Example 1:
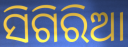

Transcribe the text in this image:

ସିଗିରିଆ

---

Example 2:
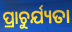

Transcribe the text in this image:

ପ୍ରାଚୁର୍ଯ୍ୟତା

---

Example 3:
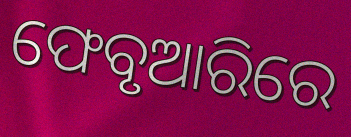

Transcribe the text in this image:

ଫେବୃଆରିରେ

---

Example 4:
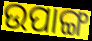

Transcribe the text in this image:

ଉପାଙ୍ଗ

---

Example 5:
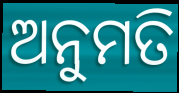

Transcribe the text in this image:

ଅନୁମତି